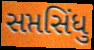
સપ્તસિંધુ